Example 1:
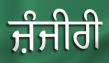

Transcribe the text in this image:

ਜ਼ੰਜੀਰੀ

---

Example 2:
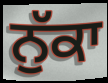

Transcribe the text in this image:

ਨੁੱਕਾ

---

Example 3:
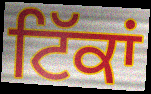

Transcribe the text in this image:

ਟਿੱਕਾਂ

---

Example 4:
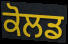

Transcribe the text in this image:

ਕੋਲਡ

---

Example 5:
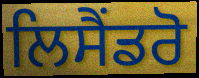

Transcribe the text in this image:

ਲਿਸੈਂਡਰੋ